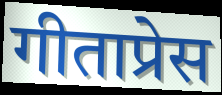
गीताप्रेस